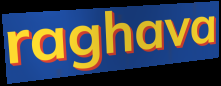
raghava